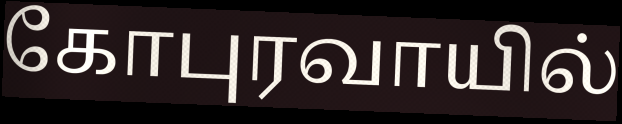
கோபுரவாயில்